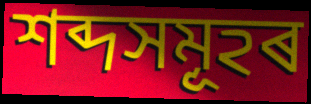
শব্দসমূহৰ